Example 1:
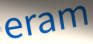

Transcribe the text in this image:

eram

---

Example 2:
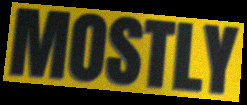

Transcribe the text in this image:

MOSTLY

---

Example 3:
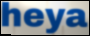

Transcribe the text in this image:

heya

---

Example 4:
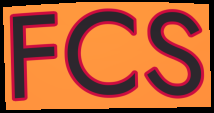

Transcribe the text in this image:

FCS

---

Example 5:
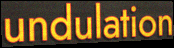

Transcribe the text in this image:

undulation